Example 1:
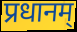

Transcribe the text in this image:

प्रधानम्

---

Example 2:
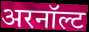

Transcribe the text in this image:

अरनॉल्ट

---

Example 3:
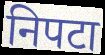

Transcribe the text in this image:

निपटा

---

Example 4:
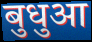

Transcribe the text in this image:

बुधुआ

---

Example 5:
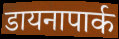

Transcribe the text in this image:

डायनापार्क